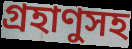
গ্রহাণুসহ